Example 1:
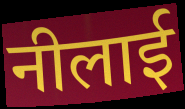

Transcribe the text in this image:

नीलाई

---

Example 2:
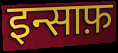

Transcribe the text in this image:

इन्साफ़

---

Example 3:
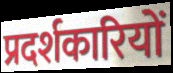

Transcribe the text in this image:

प्रदर्शकारियों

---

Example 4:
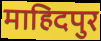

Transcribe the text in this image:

माहिदपुर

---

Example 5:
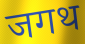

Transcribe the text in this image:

जगथ